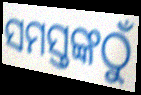
ସମସ୍ତଙ୍କଠୁଁ